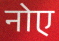
नोए